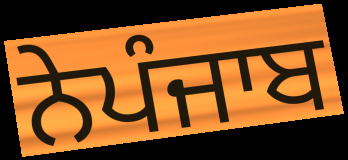
ਨੇਪੰਜਾਬ